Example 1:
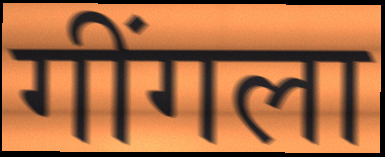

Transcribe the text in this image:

गींगला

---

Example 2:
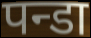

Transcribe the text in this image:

पन्डा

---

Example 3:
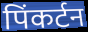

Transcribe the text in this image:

पिंकर्टन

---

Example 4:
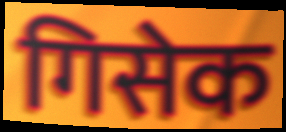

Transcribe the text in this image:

गिसेक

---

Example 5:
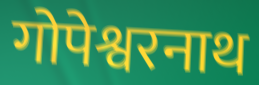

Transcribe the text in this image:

गोपेश्वरनाथ